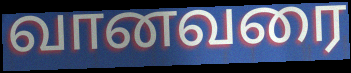
வானவரை